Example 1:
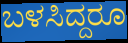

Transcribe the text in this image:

ಬಳಸಿದ್ದರೂ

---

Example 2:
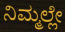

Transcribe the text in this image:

ನಿಮ್ಮಲ್ಲೇ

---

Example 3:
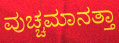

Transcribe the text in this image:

ವುಚ್ಚಮಾನತ್ತಾ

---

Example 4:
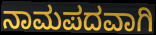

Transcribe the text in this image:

ನಾಮಪದವಾಗಿ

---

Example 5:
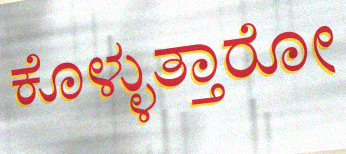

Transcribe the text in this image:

ಕೊಳ್ಳುತ್ತಾರೋ